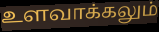
உளவாக்கலும்